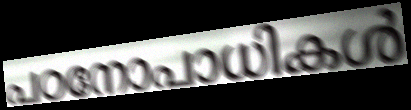
പഠനോപാധികൾ